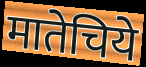
मातेचिये